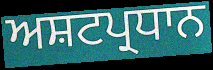
ਅਸ਼ਟਪ੍ਰਧਾਨ